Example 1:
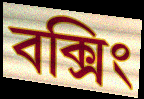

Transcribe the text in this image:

বক্সিং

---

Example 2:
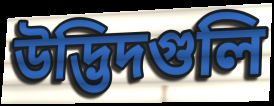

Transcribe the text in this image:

উদ্ভিদগুলি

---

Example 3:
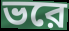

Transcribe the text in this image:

ভরে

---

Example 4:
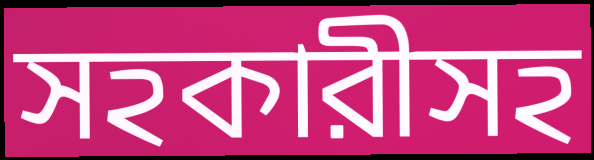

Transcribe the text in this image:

সহকারীসহ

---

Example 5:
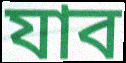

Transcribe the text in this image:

যাব